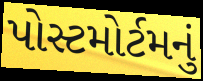
પોસ્ટમોર્ટમનું